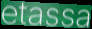
etassa